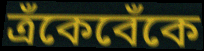
ত্রঁকেবেঁকে